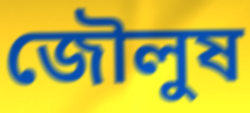
জৌলুষ